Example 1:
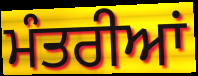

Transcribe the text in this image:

ਮੰਤਰੀਆਂ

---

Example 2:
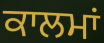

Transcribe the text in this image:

ਕਾਲਮਾਂ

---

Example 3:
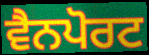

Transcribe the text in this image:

ਵੈਨਪੋਰਟ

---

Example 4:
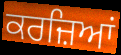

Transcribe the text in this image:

ਕਰਜ਼ਿਆਂ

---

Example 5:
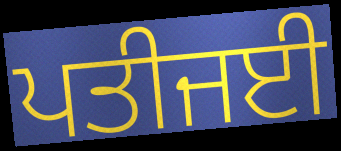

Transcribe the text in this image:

ਪਤੀਜਈ